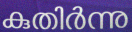
കുതിർന്നു